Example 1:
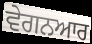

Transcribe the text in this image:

ਵੇਗਨਆਰ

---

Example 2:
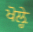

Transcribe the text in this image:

ਖੋਲ਼੍ਹੇ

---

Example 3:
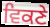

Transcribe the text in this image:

ਵਿਕਣੇ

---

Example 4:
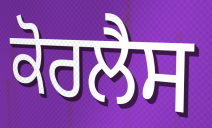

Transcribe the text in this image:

ਕੋਰਲੈਸ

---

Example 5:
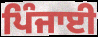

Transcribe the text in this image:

ਪਿੰਜਾਈ